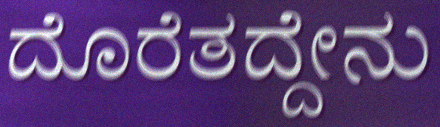
ದೊರೆತದ್ದೇನು